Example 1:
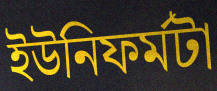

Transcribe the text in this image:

ইউনিফর্মটা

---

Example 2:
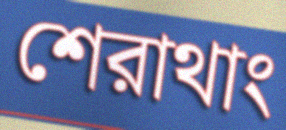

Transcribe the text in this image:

শেরাথাং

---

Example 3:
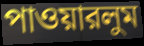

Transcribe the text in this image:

পাওয়ারলুম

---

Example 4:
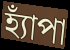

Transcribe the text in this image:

হ্যাঁপা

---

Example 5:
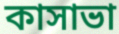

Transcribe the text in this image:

কাসাভা